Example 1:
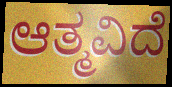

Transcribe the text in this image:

ಆತ್ಮವಿದೆ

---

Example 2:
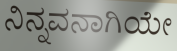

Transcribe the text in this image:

ನಿನ್ನವನಾಗಿಯೇ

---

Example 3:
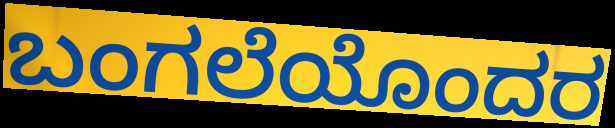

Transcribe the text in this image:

ಬಂಗಲೆಯೊಂದರ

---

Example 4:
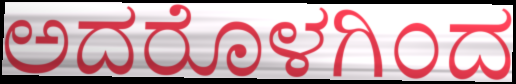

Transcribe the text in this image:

ಅದರೊಳಗಿಂದ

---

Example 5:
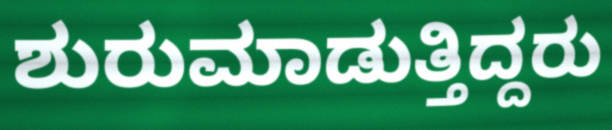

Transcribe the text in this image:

ಶುರುಮಾಡುತ್ತಿದ್ದರು